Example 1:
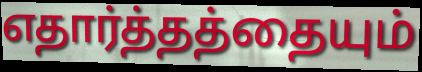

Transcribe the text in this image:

எதார்த்தத்தையும்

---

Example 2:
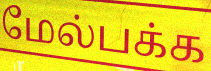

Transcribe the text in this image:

மேல்பக்க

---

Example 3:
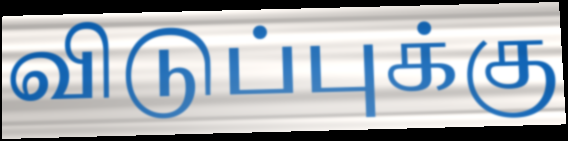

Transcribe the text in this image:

விடுப்புக்கு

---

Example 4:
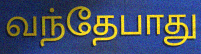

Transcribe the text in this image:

வந்தேபாது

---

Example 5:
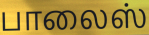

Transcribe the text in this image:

பாலைஸ்